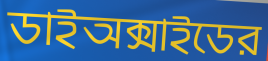
ডাইঅক্সাইডের